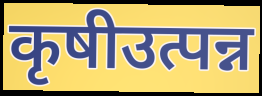
कृषीउत्पन्न